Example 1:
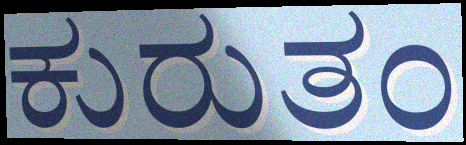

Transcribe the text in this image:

ಕುರುತಂ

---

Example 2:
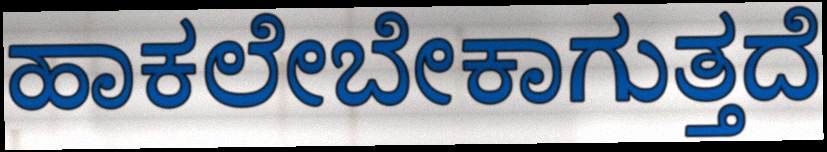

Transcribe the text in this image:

ಹಾಕಲೇಬೇಕಾಗುತ್ತದೆ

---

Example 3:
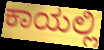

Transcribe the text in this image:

ಕಾಯಲ್ಲಿ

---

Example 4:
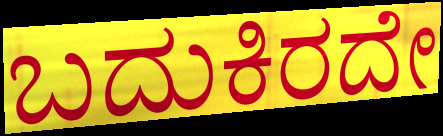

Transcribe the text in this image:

ಬದುಕಿರದೇ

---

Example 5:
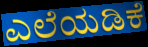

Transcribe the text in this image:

ಎಲೆಯಡಿಕೆ